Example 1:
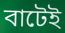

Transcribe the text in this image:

বাটেই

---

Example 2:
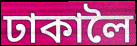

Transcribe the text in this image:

ঢাকালৈ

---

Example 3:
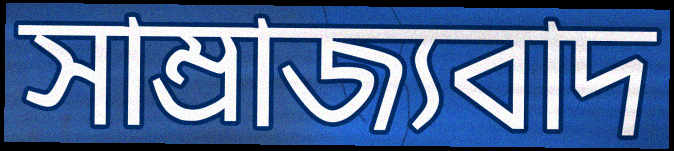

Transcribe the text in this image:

সাম্ৰাজ্যবাদ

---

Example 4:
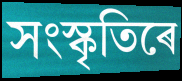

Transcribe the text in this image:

সংস্কৃতিৰে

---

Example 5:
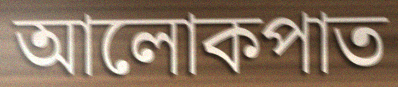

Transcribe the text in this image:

আলোকপাত